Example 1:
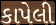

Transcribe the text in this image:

કાપેલી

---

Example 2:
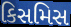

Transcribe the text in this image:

કિસમિસ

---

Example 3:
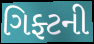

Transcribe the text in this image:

ગિફ્ટની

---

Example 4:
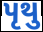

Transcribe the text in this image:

પૃથુ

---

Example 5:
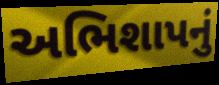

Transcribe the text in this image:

અભિશાપનું